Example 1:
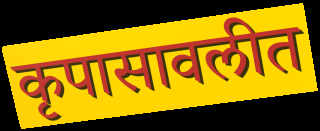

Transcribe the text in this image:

कृपासावलीत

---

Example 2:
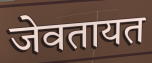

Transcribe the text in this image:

जेवतायत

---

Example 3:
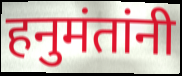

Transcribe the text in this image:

हनुमंतांनी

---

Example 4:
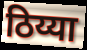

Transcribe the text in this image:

ठिय्या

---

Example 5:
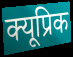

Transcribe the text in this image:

क्यूप्रिक